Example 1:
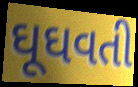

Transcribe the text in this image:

ઘૂઘવતી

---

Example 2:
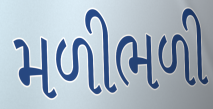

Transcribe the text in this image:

મળીભળી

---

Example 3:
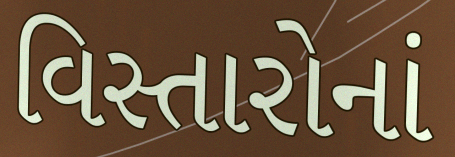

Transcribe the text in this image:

વિસ્તારોનાં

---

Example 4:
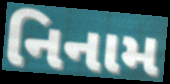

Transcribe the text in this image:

નિનામ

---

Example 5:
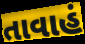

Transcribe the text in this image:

તાવાહં